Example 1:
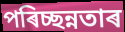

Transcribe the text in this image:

পৰিচ্ছন্নতাৰ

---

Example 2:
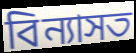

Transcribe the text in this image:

বিন্যাসত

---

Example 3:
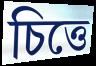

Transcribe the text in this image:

চিত্তে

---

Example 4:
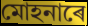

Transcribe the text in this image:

মোহনাৰে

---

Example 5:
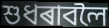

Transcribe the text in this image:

শুধৰাবলৈ